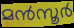
മൻസൂർ